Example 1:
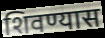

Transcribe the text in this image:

शिवण्यास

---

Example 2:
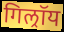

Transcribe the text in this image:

गिल्रॉय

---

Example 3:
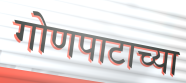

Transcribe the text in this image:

गोणपाटाच्या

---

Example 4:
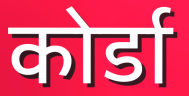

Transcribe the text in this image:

कोर्डा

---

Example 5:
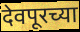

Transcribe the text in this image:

देवपूरच्या